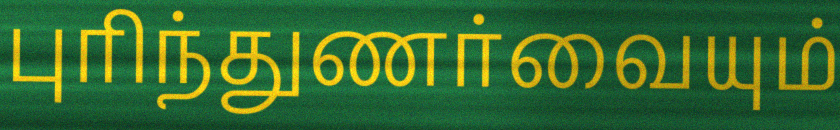
புரிந்துணர்வையும்